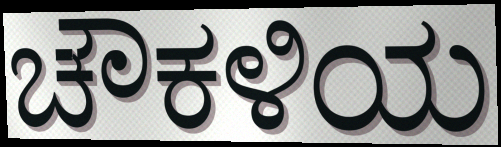
ಚೌಕಳಿಯ